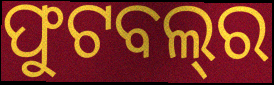
ଫୁଟବଲ୍‍ର